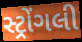
સ્ટ્રોંગલી